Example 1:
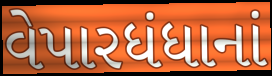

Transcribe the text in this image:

વેપારધંધાનાં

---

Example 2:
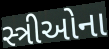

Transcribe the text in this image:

સ્ત્રીઓના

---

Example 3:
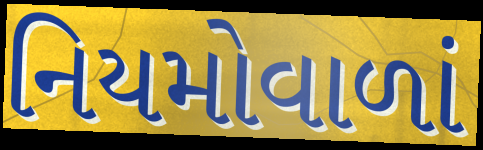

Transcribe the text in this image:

નિયમોવાળાં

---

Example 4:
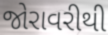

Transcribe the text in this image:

જોરાવરીથી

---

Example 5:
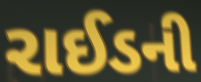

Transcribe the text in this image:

રાઈડની